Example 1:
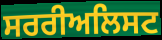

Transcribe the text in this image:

ਸਰਰੀਅਲਿਸਟ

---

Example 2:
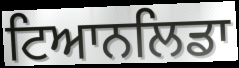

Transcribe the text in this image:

ਟਿਆਨਲਿਡਾ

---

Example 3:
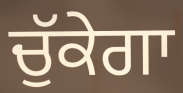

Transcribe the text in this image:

ਚੁੱਕੇਗਾ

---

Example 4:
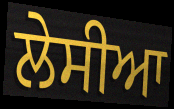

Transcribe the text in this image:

ਲੇਸੀਆ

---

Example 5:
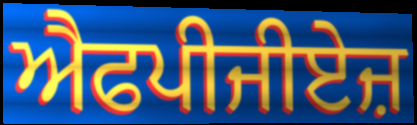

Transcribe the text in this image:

ਐਫਪੀਜੀਏਜ਼